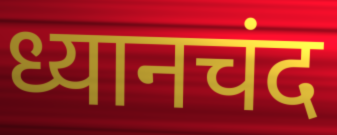
ध्यानचंद